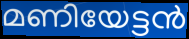
മണിയേട്ടൻ